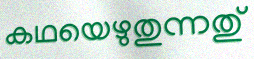
കഥയെഴുതുന്നതു്